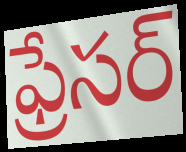
ఫ్రేసర్